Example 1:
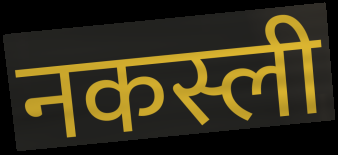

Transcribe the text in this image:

नकस्ली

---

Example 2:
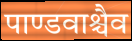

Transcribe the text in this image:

पाण्डवाश्चैव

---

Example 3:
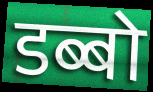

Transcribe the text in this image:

डब्बो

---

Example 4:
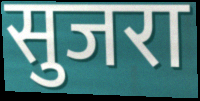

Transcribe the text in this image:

सुजरा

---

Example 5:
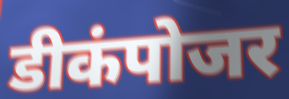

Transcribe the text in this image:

डीकंपोजर